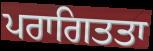
ਪਰਾਗਿਤਤਾ